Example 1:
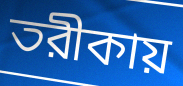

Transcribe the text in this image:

তরীকায়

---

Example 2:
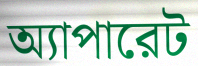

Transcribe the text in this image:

অ্যাপারেট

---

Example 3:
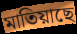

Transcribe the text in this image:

মাতিয়াছে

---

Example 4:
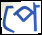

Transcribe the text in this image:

পে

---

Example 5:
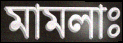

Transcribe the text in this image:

মামলাঃ